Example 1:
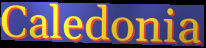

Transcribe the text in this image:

Caledonia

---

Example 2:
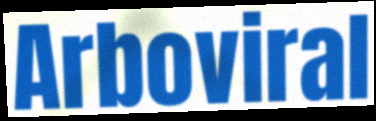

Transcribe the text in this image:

Arboviral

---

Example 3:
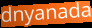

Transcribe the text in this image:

dnyanada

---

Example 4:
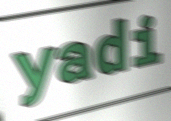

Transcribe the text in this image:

yadi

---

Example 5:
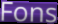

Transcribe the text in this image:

Fons